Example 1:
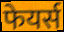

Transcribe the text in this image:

फेयर्स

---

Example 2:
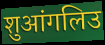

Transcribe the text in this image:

शुआंगलिउ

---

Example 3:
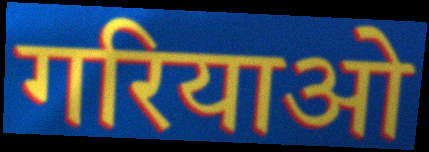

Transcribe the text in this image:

गरियाओ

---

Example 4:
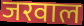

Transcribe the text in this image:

जरवाल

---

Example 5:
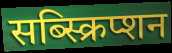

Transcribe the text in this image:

सब्स्क्रिप्शन